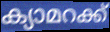
ക്യാമറക്ക്